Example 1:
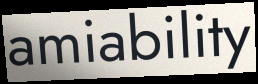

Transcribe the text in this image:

amiability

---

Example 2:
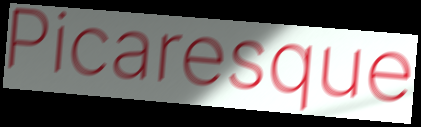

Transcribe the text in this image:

Picaresque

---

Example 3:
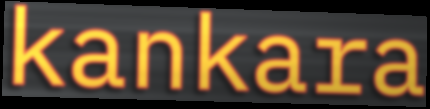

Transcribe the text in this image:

kankara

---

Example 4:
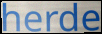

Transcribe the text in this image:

herde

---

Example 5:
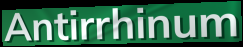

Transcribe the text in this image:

Antirrhinum